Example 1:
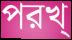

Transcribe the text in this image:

পরখ্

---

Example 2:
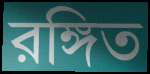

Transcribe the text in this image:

রঙ্গিত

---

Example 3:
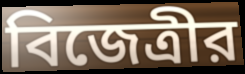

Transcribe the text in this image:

বিজেত্রীর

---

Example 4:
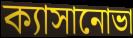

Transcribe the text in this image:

ক্যাসানোভা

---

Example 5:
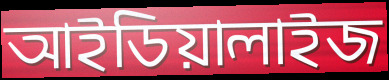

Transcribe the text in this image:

আইডিয়ালাইজ